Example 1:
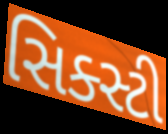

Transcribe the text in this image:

સિક્સ્ટી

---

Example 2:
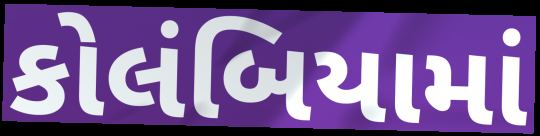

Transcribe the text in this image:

કોલંબિયામાં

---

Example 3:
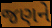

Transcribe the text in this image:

જણને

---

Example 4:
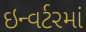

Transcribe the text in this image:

ઇન્વર્ટરમાં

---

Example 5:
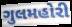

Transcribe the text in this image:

ગુલમહોરી